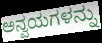
ಅನ್ವಯಗಳನ್ನು